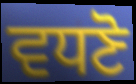
ਵਧਣੋ